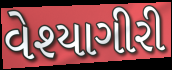
વેશ્યાગીરી